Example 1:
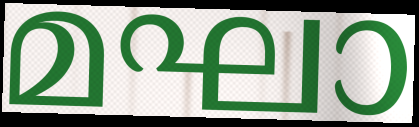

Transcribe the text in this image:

മഘാ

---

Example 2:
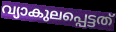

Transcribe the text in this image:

വ്യാകുലപ്പെട്ടത്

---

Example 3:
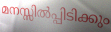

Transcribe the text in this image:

മനസ്സിൽപ്പിടിക്കും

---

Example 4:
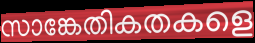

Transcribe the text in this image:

സാങ്കേതികതകളെ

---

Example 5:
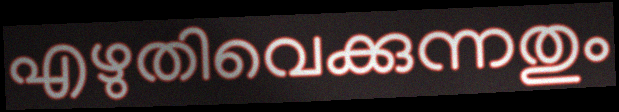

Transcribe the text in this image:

എഴുതിവെക്കുന്നതും